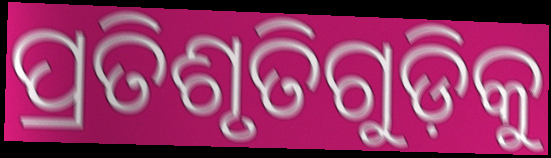
ପ୍ରତିଶୃତିଗୁଡ଼ିକୁ